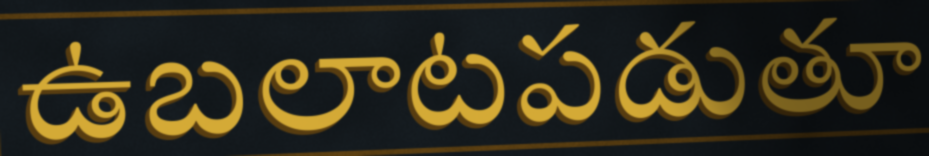
ఉబలాటపడుతూ